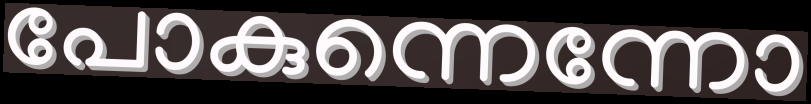
പോകുന്നെന്നോ